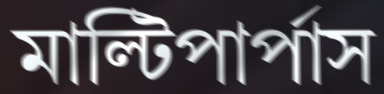
মাল্টিপার্পাস